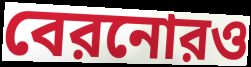
বেরনোরও